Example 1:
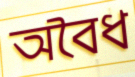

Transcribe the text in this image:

অবৈধ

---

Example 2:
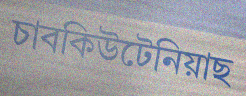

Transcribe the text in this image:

চাবকিউটেনিয়াছ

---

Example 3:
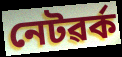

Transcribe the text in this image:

নেটৱৰ্ক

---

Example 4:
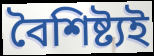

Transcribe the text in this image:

বৈশিষ্ট্যই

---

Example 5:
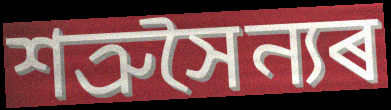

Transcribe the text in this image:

শত্ৰুসৈন্যৰ